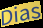
Dias